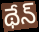
థేన్